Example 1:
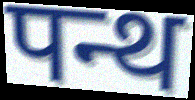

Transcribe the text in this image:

पन्थ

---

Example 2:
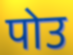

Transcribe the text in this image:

पोउ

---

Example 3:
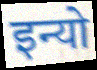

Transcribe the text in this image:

इन्यो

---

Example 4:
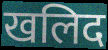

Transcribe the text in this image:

खलिद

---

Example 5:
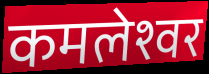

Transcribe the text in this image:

कमलेश्वर